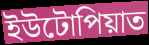
ইউটোপিয়াত